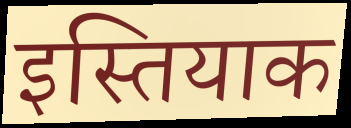
इस्तियाक